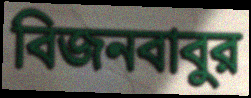
বিজনবাবুর